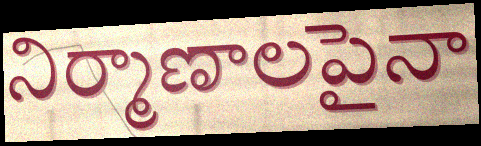
నిర్మాణాలపైనా